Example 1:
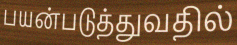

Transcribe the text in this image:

பயன்படுத்துவதில்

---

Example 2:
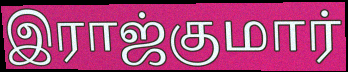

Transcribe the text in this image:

இராஜ்குமார்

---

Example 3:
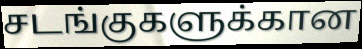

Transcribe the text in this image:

சடங்குகளுக்கான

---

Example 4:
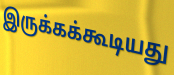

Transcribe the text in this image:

இருக்கக்கூடியது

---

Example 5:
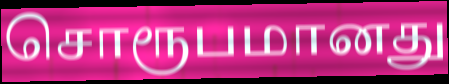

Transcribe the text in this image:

சொரூபமானது